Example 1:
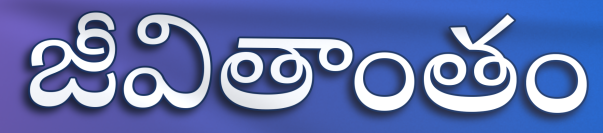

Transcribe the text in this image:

జీవితాంతం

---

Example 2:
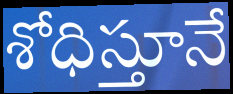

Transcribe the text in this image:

శోధిస్తూనే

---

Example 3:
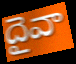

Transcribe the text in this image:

దైవా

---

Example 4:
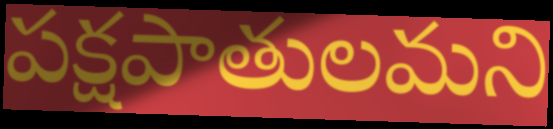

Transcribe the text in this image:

పక్షపాతులమని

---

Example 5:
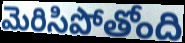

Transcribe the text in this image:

మెరిసిపోతోంది